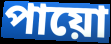
পায়ো